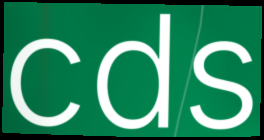
cds